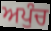
ਅਪੁੰਚ